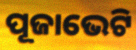
ପୂଜାଭେଟି